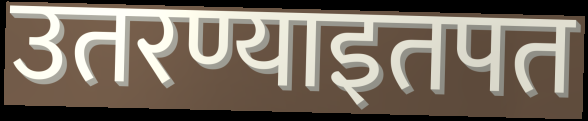
उतरण्याइतपत